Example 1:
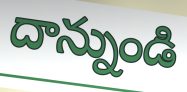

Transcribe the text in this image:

దాన్నుండి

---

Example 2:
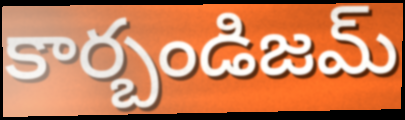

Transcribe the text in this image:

కార్బండిజమ్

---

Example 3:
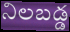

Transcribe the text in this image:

నిలబడ్డ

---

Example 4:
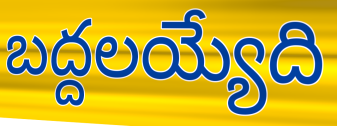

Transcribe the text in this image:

బద్దలయ్యేది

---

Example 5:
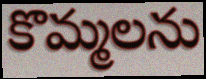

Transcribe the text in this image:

కొమ్మలను